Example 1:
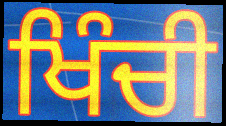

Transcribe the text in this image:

ਖਿੰਚੀ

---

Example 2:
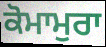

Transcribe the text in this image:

ਕੋਮਾਮੁਰਾ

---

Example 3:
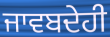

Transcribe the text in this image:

ਜਾਵਬਦੇਹੀ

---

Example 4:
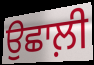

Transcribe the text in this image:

ਉਛਾਲ਼ੀ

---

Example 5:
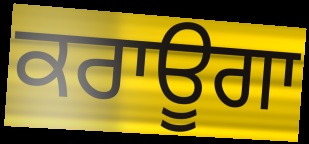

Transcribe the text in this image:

ਕਰਾਊਗਾ